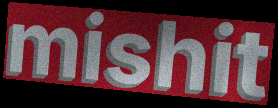
mishit